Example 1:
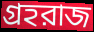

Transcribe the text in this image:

গ্রহরাজ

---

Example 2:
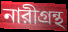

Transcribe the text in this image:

নারীগ্রন্থ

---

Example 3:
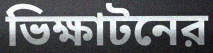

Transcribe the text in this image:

ভিক্ষাটনের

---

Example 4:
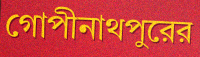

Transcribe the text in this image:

গোপীনাথপুরের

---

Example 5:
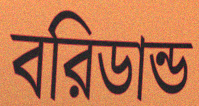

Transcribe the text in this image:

বরিডান্ড